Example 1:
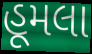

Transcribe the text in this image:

હૂમલા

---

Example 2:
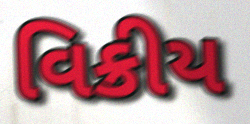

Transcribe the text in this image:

વિક્રીય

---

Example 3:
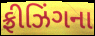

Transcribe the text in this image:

ફ્રીઝિંગના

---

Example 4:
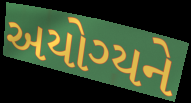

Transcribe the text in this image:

અયોગ્યને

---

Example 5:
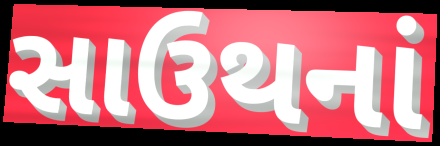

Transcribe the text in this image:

સાઉથનાં